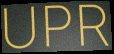
UPR